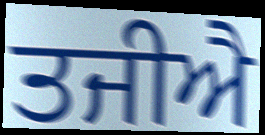
ਤਜੀਐ